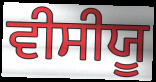
ਵੀਸੀਯੂ